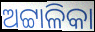
ଅଟ୍ଟାଳିକା